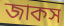
জাকস